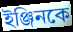
ইঞ্জিনকে